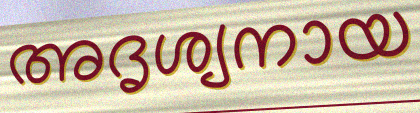
അദൃശ്യനായ